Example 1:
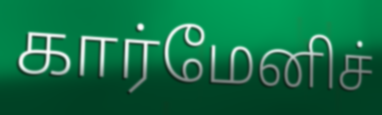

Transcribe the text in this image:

கார்மேனிச்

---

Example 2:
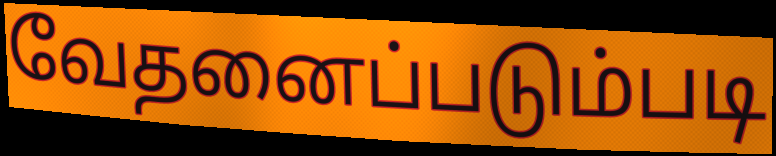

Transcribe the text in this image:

வேதனைப்படும்படி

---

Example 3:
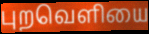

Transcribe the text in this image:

புறவெளியை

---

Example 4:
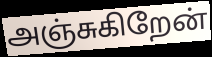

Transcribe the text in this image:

அஞ்சுகிறேன்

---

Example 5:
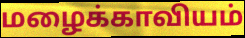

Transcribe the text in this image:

மழைக்காவியம்